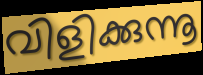
വിളിക്കുന്നൂ